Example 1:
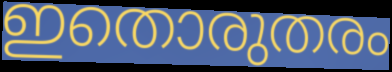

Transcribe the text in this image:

ഇതൊരുതരം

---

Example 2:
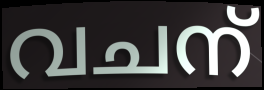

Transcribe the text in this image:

വചന്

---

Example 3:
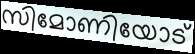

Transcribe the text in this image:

സിമോണിയോട്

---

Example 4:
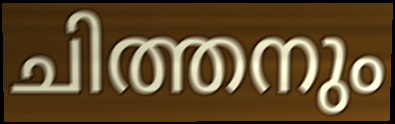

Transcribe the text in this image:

ചിത്തനും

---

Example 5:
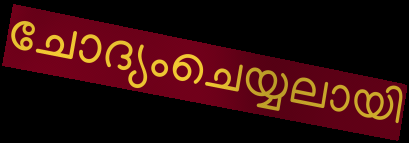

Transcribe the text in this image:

ചോദ്യംചെയ്യലായി